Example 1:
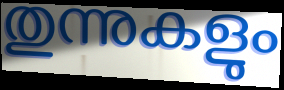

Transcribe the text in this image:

തുന്നുകളും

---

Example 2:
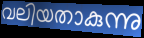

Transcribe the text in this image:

വലിയതാകുന്നു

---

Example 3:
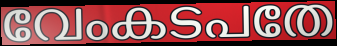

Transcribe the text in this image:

വേംകടപതേ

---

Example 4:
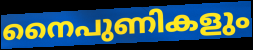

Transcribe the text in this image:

നൈപുണികളും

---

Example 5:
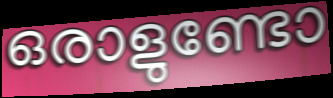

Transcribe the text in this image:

ഒരാളുണ്ടോ